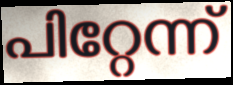
പിറ്റേന്ന്